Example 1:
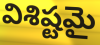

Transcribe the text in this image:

విశిష్టమై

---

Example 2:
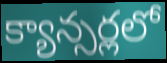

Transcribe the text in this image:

క్యాన్సర్లలో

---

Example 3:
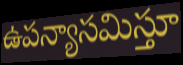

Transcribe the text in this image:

ఉపన్యాసమిస్తూ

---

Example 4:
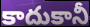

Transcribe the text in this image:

కాదుకానీ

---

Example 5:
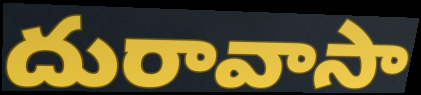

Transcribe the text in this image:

దురావాసా